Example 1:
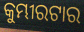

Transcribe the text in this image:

କୁମ୍ଭୀରଟାର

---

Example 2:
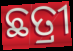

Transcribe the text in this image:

ଛତ୍ରୀ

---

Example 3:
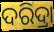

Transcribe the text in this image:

ଦରିଦ୍ରା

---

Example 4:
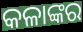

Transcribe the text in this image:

କଳାଙ୍କର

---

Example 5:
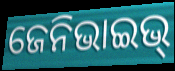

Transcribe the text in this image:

ଜେନିଭାଇଭ୍